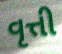
વૃત્તી